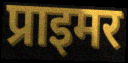
प्राइमर